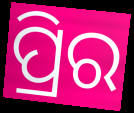
ପ୍ରିର